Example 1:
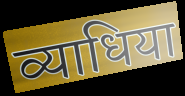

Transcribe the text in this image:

व्याधिया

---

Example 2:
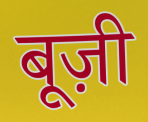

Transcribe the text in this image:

बूज़ी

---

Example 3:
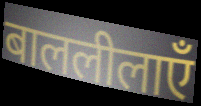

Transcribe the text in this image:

बाललीलाएँ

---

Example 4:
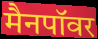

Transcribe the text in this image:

मैनपॉवर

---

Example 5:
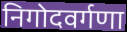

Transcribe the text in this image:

निगोदवर्गणा